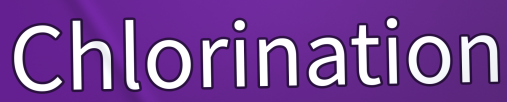
Chlorination